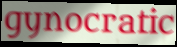
gynocratic